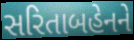
સરિતાબહેનને